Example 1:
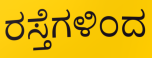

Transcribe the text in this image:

ರಸ್ತೆಗಳಿಂದ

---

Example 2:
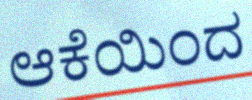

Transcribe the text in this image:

ಆಕೆಯಿಂದ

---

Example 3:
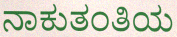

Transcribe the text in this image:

ನಾಕುತಂತಿಯ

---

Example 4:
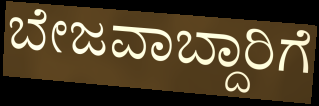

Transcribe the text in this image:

ಬೇಜವಾಬ್ದಾರಿಗೆ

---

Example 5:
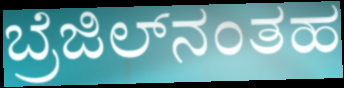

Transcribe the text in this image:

ಬ್ರೆಜಿಲ್‌ನಂತಹ